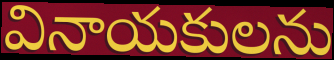
వినాయకులను